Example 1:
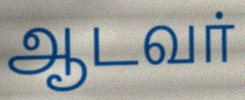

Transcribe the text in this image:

ஆடவர்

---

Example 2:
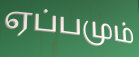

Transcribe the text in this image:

ஏப்பமும்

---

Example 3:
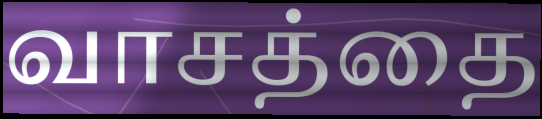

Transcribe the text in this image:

வாசத்தை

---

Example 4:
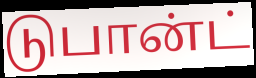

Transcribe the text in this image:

டுபான்ட்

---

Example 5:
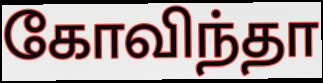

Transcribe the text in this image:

கோவிந்தா